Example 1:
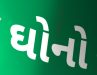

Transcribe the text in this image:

ઘોનો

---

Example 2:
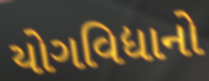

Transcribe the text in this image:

યોગવિદ્યાનો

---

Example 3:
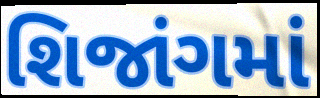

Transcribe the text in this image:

શિજાંગમાં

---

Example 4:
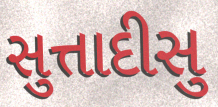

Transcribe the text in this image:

સુત્તાદીસુ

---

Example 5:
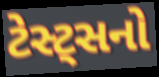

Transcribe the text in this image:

ટેસ્ટ્સનો